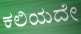
ಕಲಿಯದೇ